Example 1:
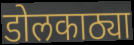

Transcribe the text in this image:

डोलकाठ्या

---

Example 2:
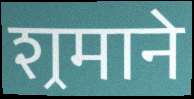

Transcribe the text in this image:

श्रमाने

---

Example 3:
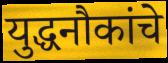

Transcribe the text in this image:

युद्धनौकांचे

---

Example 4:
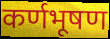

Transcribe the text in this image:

कर्णभूषण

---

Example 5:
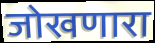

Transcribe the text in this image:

जोखणारा